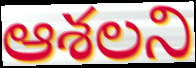
ఆశలని